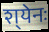
श्येनः